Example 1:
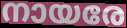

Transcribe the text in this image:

നായരേ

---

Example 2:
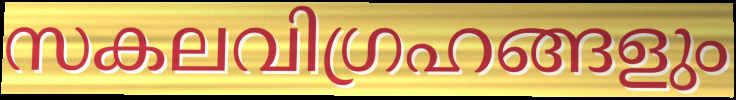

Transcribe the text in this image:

സകലവിഗ്രഹങ്ങളും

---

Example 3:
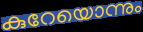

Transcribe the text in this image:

കുറേയൊന്നും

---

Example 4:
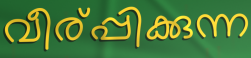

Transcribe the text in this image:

വീര്പ്പിക്കുന്ന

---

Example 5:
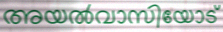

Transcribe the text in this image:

അയൽവാസിയോട്